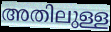
അതിലുള്ള